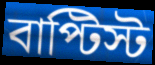
বাপ্টিস্ট